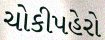
ચોકીપહેરો